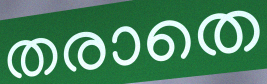
തരാതെ